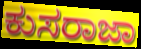
ಕುಸರಾಜಾ